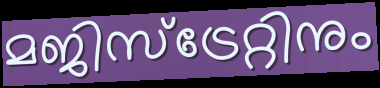
മജിസ്ട്രേറ്റിനും